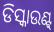
ଡିସ୍କାଉଣ୍ଟ୍